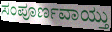
ಸಂಪೂರ್ಣವಾಯ್ತು